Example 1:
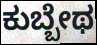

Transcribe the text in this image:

ಕುಬ್ಬೇಥ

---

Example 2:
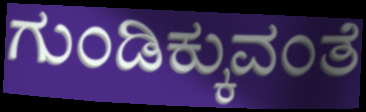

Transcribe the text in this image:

ಗುಂಡಿಕ್ಕುವಂತೆ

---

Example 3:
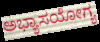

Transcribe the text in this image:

ಅಭ್ಯಾಸಯೋಗ್ಯ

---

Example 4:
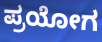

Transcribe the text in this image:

ಪ್ರಯೋಗ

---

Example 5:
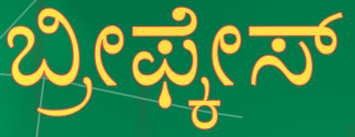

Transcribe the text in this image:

ಬ್ರೀಫ್ಕೇಸ್